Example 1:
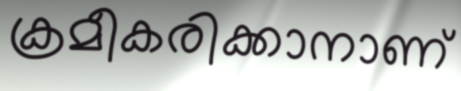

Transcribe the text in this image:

ക്രമീകരിക്കാനാണ്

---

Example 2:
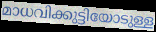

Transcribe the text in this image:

മാധവിക്കുട്ടിയോടുള്ള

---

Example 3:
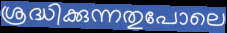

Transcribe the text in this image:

ശ്രദ്ധിക്കുന്നതുപോലെ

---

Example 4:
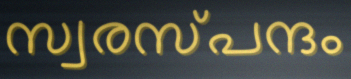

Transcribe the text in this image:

സ്വരസ്പന്ദം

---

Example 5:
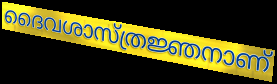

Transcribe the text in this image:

ദൈവശാസ്ത്രജ്ഞനാണ്